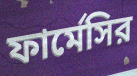
ফার্মেসির